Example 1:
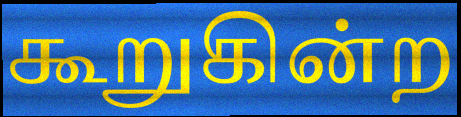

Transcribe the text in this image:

கூறுகின்ற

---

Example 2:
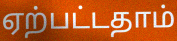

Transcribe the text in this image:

ஏற்பட்டதாம்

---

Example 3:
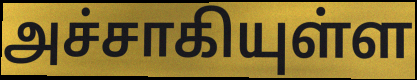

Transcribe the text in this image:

அச்சாகியுள்ள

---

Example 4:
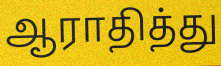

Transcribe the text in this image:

ஆராதித்து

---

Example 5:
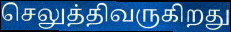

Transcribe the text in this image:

செலுத்திவருகிறது